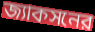
জ্যাকসনের